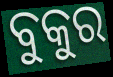
ବୁକୁର